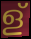
ള്